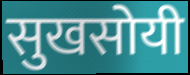
सुखसोयी